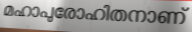
മഹാപുരോഹിതനാണ്